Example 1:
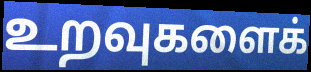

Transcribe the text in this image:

உறவுகளைக்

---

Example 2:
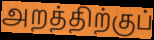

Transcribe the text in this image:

அறத்திற்குப்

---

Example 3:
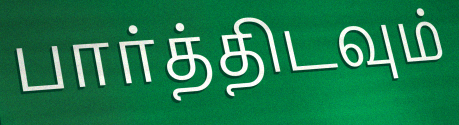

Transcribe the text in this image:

பார்த்திடவும்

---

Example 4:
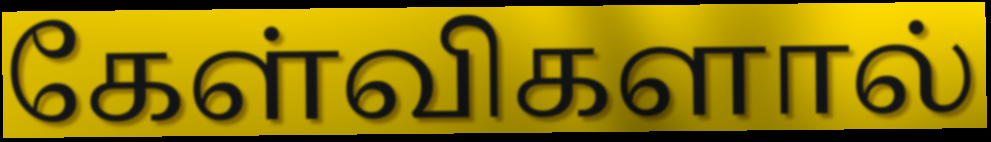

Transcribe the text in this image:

கேள்விகளால்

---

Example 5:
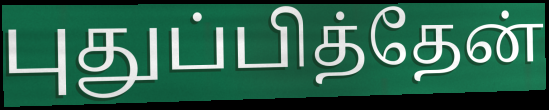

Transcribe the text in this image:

புதுப்பித்தேன்